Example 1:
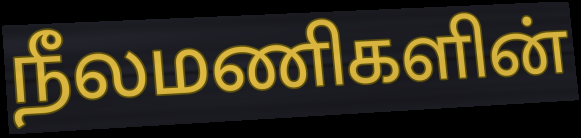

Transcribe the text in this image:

நீலமணிகளின்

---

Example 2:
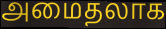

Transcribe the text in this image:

அமைதலாக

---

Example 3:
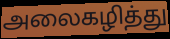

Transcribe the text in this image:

அலைகழித்து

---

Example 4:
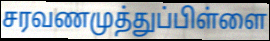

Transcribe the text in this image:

சரவணமுத்துப்பிள்ளை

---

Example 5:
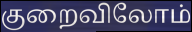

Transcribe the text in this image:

குறைவிலோம்